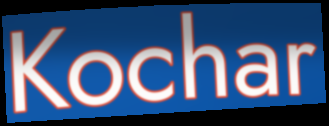
Kochar